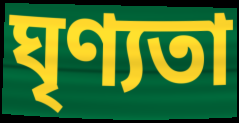
ঘৃণ্যতা